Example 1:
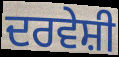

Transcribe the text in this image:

ਦਰਵੇਸ਼ੀ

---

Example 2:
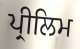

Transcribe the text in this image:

ਪ੍ਰੀਲਿਮ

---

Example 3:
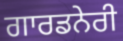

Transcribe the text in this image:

ਗਾਰਡਨੇਰੀ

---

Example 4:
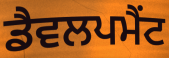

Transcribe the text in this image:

ਡੈਵਲਪਮੈਂਟ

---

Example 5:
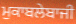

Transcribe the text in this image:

ਮੁਕਾਬਲੇਬਾਜੀ